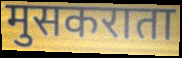
मुसकराता